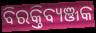
ବିରକ୍ତିବ୍ୟଞ୍ଜକ